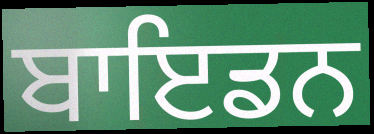
ਬਾਇਡਨ